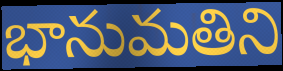
భానుమతిని